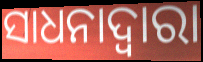
ସାଧନାଦ୍ଵାରା